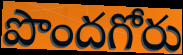
పొందగోరు